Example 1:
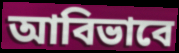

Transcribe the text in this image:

আবিভাবে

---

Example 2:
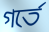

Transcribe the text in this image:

গর্তে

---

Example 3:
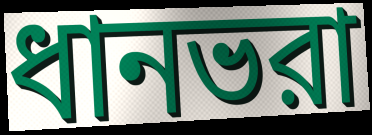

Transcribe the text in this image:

ধানভরা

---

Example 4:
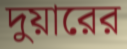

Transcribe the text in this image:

দুয়ারের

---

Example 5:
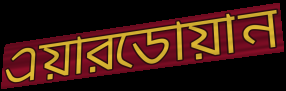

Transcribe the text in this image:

এয়ারডোয়ান